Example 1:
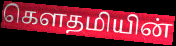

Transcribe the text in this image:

கெளதமியின்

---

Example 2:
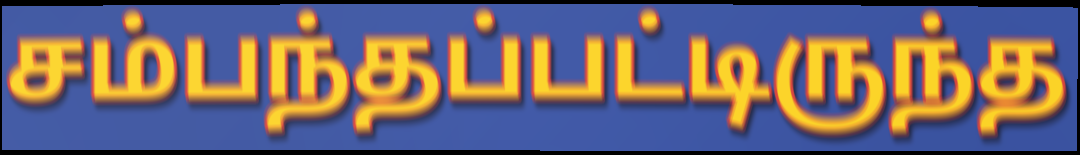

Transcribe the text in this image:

சம்பந்தப்பட்டிருந்த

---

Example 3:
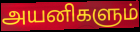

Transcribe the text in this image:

அயனிகளும்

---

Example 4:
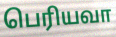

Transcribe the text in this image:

பெரியவா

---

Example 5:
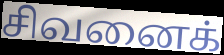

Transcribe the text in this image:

சிவனைக்